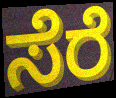
ಸೆರೆ